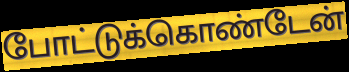
போட்டுக்கொண்டேன்